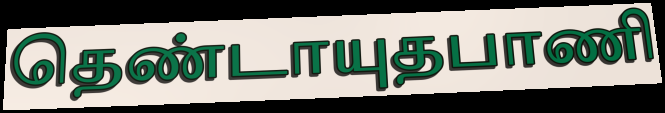
தெண்டாயுதபாணி